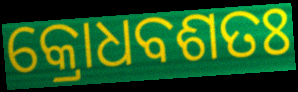
କ୍ରୋଧବଶତଃ